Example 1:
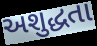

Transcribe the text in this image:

અશુદ્ધતા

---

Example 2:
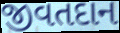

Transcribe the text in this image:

જીવતદાન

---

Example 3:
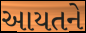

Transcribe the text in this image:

આયતને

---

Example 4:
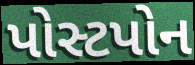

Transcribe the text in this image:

પોસ્ટપોન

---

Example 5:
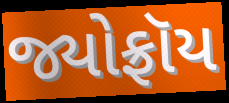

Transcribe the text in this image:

જ્યોફ્રૉય